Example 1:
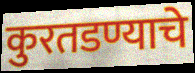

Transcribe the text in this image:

कुरतडण्याचे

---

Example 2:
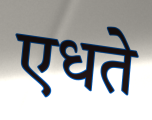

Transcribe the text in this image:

एधते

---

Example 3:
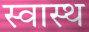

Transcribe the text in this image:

स्वास्थ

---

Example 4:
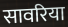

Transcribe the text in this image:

सावरिया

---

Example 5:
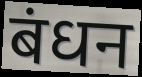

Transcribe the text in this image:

बंधन